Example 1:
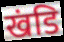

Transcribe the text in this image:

खंडि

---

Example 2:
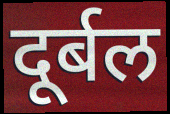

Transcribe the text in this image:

दूर्बल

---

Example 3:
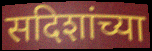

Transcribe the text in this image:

सदिशांच्या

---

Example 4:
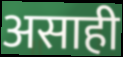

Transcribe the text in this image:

असाही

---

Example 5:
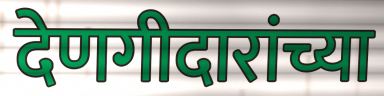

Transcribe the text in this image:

देणगीदारांच्या